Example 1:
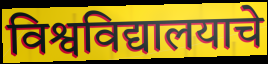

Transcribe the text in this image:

विश्वविद्यालयाचे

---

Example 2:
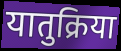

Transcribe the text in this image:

यातुक्रिया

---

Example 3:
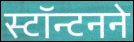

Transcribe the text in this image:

स्टॉन्टनने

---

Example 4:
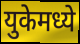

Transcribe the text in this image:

युकेमध्ये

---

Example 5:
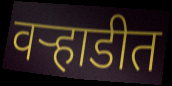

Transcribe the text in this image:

वऱ्हाडीत